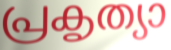
പ്രകൃത്യാ